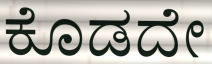
ಕೊಡದೇ